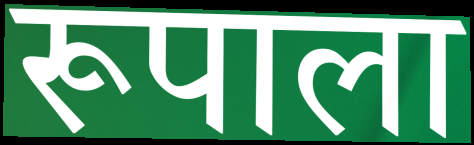
रूपाला